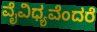
ವೈವಿಧ್ಯವೆಂದರೆ